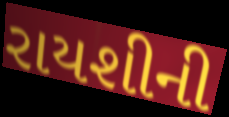
રાયશીની